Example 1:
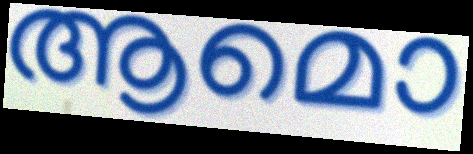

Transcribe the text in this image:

ആമൊ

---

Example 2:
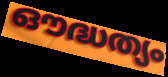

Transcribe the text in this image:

ഔദ്ധത്യം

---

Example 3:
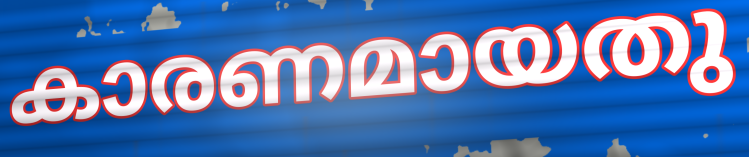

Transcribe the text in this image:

കാരണമായതു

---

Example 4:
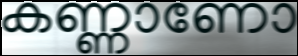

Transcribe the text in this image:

കണ്ണാണോ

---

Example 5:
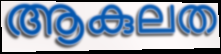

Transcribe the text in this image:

ആകുലത